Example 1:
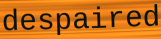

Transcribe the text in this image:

despaired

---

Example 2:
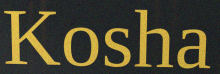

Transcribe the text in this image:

Kosha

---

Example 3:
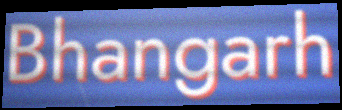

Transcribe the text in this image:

Bhangarh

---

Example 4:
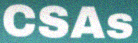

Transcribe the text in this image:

CSAs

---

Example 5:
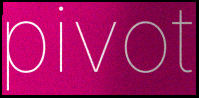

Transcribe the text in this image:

pivot